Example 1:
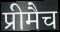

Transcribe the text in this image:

प्रीमैच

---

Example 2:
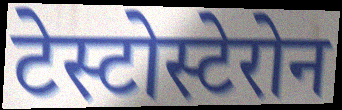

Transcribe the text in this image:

टेस्टोस्टेरोन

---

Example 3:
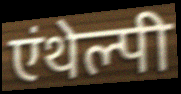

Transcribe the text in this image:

एंथेल्पी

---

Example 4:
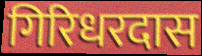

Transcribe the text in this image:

गिरिधरदास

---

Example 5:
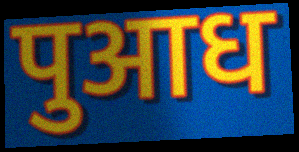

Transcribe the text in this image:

पुआध